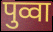
पुव्वा